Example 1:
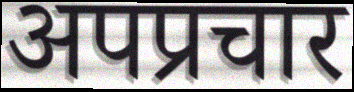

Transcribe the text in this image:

अपप्रचार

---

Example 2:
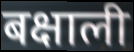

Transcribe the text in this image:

बक्षाली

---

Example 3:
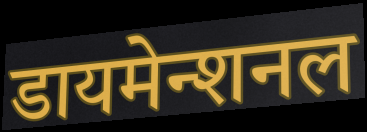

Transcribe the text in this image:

डायमेन्शनल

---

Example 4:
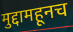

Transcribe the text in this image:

मुद्दामहूनच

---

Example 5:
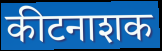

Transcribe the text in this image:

कीटनाशक